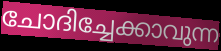
ചോദിച്ചേക്കാവുന്ന